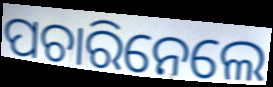
ପଚାରିନେଲେ